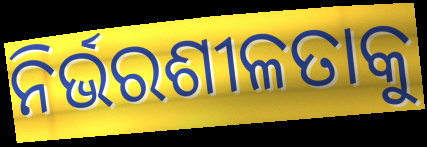
ନିର୍ଭରଶୀଳତାକୁ